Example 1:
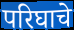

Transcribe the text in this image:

परिघाचे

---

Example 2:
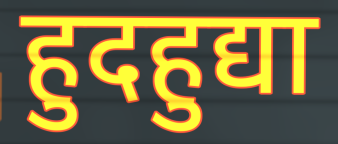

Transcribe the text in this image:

हुदहुद्या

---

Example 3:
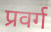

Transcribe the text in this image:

प्रवर्ग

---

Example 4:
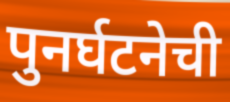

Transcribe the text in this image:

पुनर्घटनेची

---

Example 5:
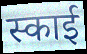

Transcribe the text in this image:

स्काई